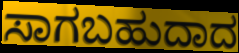
ಸಾಗಬಹುದಾದ